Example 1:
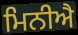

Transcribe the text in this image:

ਮਿਨੀਐ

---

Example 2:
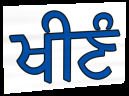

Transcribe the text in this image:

ਖੀਣੰ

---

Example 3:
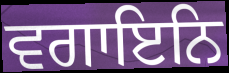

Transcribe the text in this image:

ਵਗਾਇਨਿ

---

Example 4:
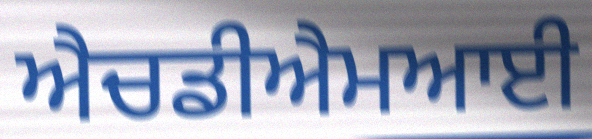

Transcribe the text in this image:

ਐਚਡੀਐਮਆਈ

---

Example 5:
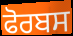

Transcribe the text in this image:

ਫੋਰਬਸ